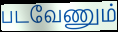
படவேணும்